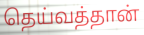
தெய்வத்தான்